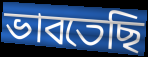
ভাবতেছি